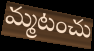
మ్మటంచు